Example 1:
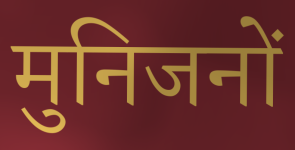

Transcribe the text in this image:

मुनिजनों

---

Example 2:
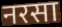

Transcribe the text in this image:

नरसा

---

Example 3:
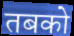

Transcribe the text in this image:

तबको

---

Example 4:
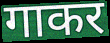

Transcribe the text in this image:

गाकर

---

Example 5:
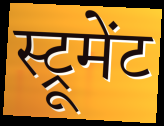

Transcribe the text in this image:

स्ट्रूमेंट